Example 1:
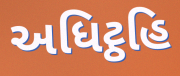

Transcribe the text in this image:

અધિટ્ઠહિ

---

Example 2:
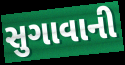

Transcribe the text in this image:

સુગાવાની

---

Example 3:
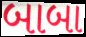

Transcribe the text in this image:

બાબા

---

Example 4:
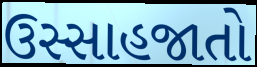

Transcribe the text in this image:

ઉસ્સાહજાતો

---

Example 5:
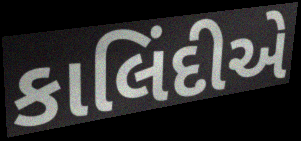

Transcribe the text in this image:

કાલિંદીએ